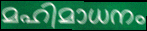
മഹിമാധനം